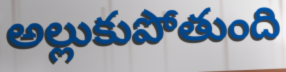
అల్లుకుపోతుంది